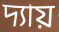
দ্যায়